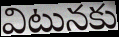
విటునకు